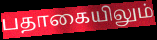
பதாகையிலும்